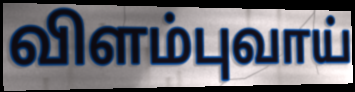
விளம்புவாய்